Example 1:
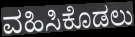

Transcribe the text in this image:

ವಹಿಸಿಕೊಡಲು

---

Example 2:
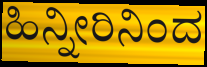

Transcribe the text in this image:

ಹಿನ್ನೀರಿನಿಂದ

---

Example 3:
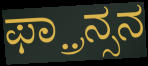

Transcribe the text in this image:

ಫ಼್ರಾನ್ಸನ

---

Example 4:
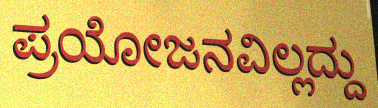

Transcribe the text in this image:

ಪ್ರಯೋಜನವಿಲ್ಲದ್ದು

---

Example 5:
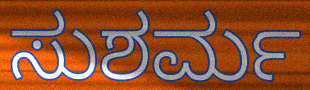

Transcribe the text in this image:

ಸುಶರ್ಮ